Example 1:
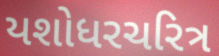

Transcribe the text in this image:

યશોધરચરિત્ર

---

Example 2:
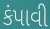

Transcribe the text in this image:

કંપાવી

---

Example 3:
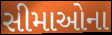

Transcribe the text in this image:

સીમાઓના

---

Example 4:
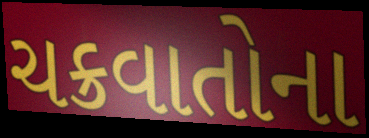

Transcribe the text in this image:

ચક્રવાતોના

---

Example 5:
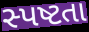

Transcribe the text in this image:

સ્પષ્ટતા